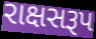
રાક્ષસરૂપ